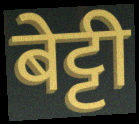
बेट्टी